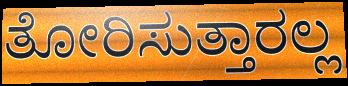
ತೋರಿಸುತ್ತಾರಲ್ಲ